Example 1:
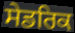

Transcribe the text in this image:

ਸੇਡਰਿਕ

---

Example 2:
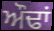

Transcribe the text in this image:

ਔਢਾਂ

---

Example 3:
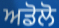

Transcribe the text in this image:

ਅਡੋਲੋ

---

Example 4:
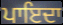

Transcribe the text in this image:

ਪਾਇਦਾ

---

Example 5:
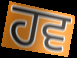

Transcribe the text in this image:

ਹਵ